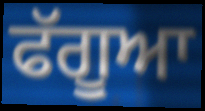
ਫੱਗੂਆ